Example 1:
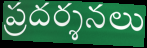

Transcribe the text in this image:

ప్రదర్శనలు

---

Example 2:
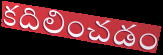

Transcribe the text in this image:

కదిలించడం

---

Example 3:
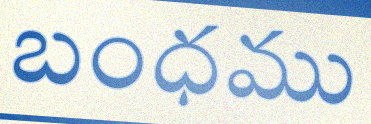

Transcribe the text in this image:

బంధము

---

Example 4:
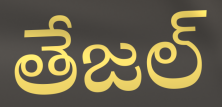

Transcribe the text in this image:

తేజల్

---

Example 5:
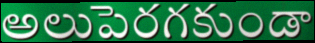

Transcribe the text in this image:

అలుపెరగకుండా